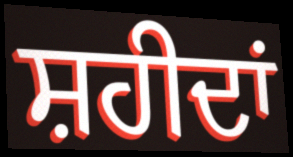
ਸ਼ਹੀਦਾਂ